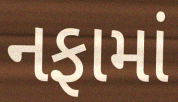
નફામાં